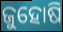
ଜୁହୋଷି